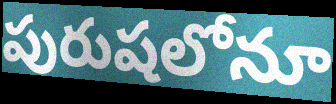
పురుషలోనూ